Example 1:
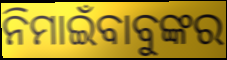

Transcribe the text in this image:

ନିମାଇଁବାବୁଙ୍କର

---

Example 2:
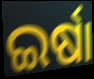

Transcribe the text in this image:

ଇର୍ଷା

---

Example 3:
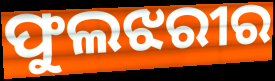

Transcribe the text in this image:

ଫୁଲଝରୀର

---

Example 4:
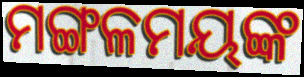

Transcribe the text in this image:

ମଙ୍ଗଳମୟଙ୍କ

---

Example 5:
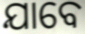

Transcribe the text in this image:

ଯାବେ